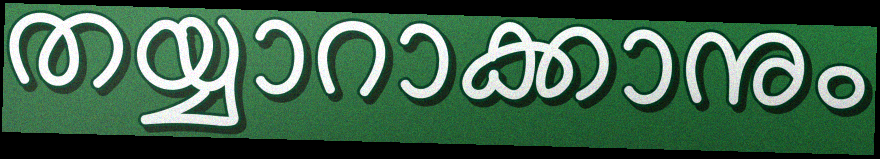
തയ്യാറാക്കാനും